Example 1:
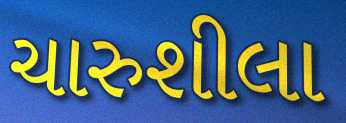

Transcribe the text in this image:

ચારુશીલા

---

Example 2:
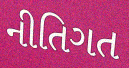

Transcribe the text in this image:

નીતિગત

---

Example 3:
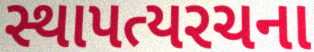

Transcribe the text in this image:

સ્થાપત્યરચના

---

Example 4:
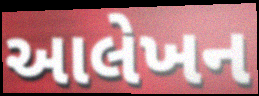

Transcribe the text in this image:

આલેખન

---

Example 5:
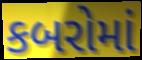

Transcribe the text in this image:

કબરોમાં